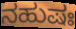
ನಹುಷಃ